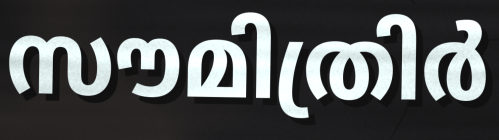
സൗമിത്രിർ